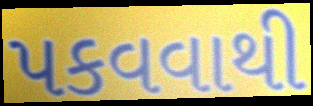
પકવવાથી